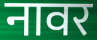
नावर